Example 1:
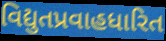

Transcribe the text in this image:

વિદ્યુતપ્રવાહધારિત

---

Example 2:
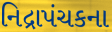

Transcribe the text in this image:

નિદ્રાપંચકના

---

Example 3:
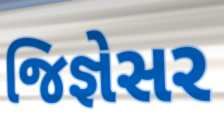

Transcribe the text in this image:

જિજ્ઞેસર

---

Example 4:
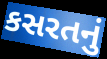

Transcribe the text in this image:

કસરતનું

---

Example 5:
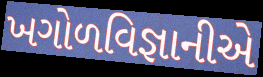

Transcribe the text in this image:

ખગોળવિજ્ઞાનીએ